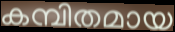
കമ്പിതമായ